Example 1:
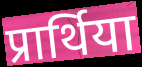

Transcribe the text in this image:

प्रार्थिया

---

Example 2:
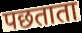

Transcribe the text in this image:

पछताता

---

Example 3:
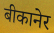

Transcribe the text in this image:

बीकानेर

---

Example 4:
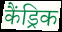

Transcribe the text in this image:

कैंड्रिक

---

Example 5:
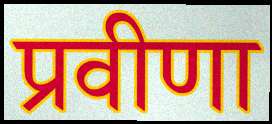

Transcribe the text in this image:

प्रवीणा